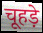
चूहड़े